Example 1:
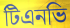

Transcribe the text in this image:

টিএনভি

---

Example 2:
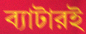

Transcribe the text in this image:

ব্যাটারই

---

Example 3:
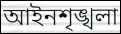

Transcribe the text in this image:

আইনশৃঙ্খলা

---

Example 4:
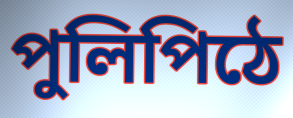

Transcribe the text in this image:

পুলিপিঠে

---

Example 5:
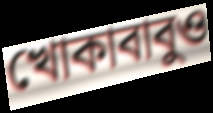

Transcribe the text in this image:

খোকাবাবুও